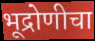
भूद्रोणीचा